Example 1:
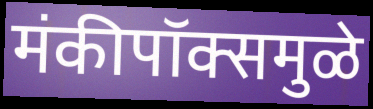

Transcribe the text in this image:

मंकीपॉक्समुळे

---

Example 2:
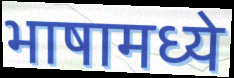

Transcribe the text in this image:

भाषामध्ये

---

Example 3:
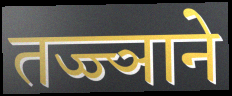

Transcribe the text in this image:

तज्ज्ञाने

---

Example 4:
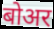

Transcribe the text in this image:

बोअर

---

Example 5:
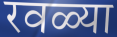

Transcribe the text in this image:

रवळ्या